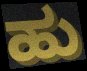
ಹು